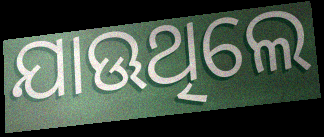
ଯାଊଥିଲେ